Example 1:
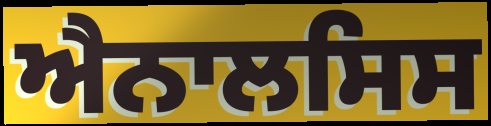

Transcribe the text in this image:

ਐਨਾਲਸਿਸ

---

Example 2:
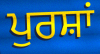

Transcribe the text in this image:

ਪੁਰਸ਼ਾਂ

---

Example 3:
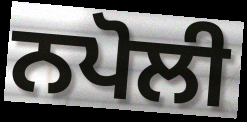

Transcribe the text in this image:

ਨਪੋਲੀ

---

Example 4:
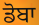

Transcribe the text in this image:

ਡੋਬਾ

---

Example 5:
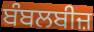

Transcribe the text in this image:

ਬੰਬਲਬੀਜ਼